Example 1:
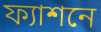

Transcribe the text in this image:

ফ্যাশনে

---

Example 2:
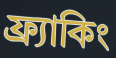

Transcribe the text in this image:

ফ্র্যাকিং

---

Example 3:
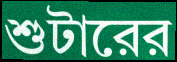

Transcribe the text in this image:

শুটারের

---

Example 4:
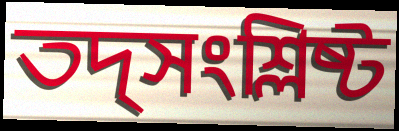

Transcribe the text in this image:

তদ্‌সংশ্লিষ্ট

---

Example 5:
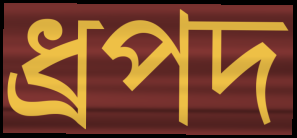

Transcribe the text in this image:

ধ্রপদ